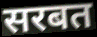
सरबत